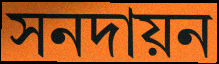
সনদায়ন